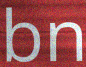
bn